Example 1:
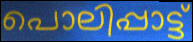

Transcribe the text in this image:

പൊലിപ്പാട്ട്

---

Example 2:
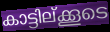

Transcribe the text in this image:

കാട്ടില്ക്കൂടെ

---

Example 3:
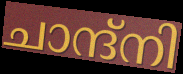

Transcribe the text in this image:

ചാന്ദ്നി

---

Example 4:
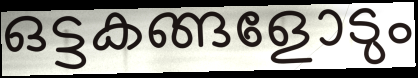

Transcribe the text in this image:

ഒട്ടകങ്ങളോടും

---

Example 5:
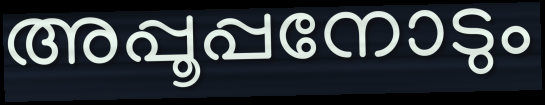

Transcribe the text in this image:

അപ്പൂപ്പനോടും